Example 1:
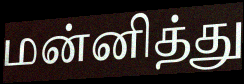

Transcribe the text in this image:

மன்னித்து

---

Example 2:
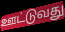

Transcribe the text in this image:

ஊட்டுவது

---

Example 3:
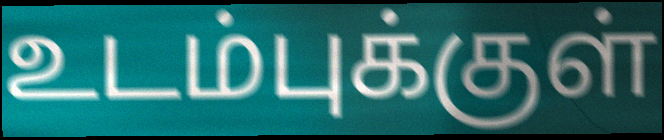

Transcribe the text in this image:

உடம்புக்குள்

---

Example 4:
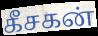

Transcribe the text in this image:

கீசகன்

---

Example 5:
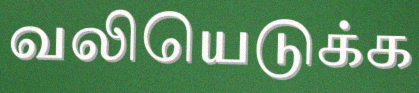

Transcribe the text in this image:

வலியெடுக்க